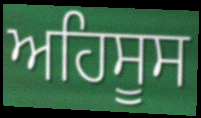
ਅਹਿਸੂਸ